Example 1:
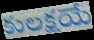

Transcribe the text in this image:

కులక్షయే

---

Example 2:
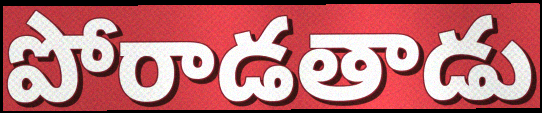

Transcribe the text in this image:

పోరాడతాడు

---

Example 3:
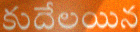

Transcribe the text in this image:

కుదేలయిన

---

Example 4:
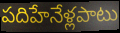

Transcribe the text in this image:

పదిహేనేళ్లపాటు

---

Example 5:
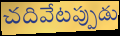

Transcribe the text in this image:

చదివేటప్పుడు